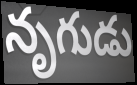
నృగుడు